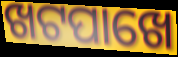
ଖଟପାଖେ